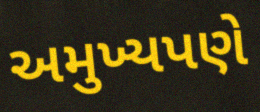
અમુખ્યપણે